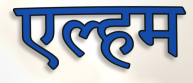
एल्हम